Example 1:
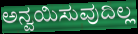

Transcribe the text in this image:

ಅನ್ವಯಿಸುವುದಿಲ್ಲ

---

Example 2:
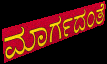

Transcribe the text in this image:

ಮಾರ್ಗದಂತೆ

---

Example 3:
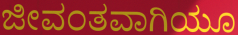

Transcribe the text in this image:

ಜೀವಂತವಾಗಿಯೂ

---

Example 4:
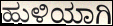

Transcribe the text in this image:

ಹುಳಿಯಾಗಿ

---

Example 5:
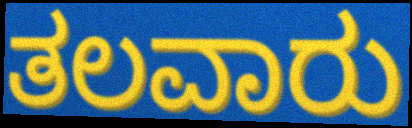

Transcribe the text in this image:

ತಲವಾರು